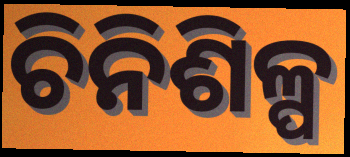
ଚିନିଶିଳ୍ପ